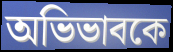
অভিভাবকে